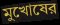
মুখোষের